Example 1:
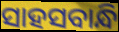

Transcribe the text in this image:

ସାହସବାନ୍ଧି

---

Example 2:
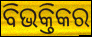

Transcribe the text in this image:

ବିଭକ୍ତିକର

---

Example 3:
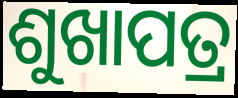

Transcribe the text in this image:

ଶୁଖାପତ୍ର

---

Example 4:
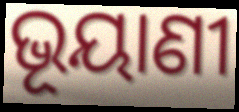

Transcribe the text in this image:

ଭୂୟାଣୀ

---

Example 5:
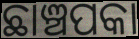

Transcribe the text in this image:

ଛାଞ୍ଚପକା